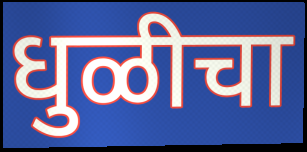
धुळीचा